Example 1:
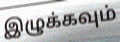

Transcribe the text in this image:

இழுக்கவும்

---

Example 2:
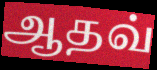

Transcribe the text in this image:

ஆதவ்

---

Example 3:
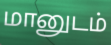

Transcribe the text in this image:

மானுடம்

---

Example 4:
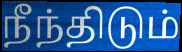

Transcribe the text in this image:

நீந்திடும்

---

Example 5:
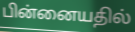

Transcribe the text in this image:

பின்னையதில்